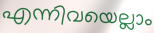
എന്നിവയെല്ലാം